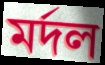
মর্দল